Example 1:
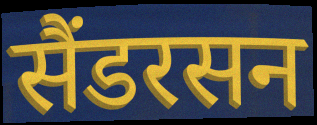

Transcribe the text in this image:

सैंडरसन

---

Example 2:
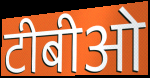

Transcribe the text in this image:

टीबीओ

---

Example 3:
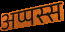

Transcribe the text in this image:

अप्पस्स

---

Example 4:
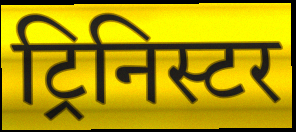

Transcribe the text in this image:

ट्रिनिस्टर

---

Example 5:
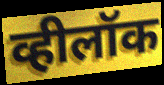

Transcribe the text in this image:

व्हीलॉक